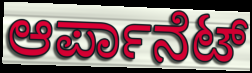
ಆರ್ಪಾನೆಟ್